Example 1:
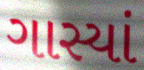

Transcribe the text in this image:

ગાસ્યાં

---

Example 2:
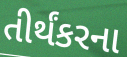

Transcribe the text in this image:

તીર્થંકરના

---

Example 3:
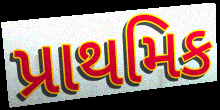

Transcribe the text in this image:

પ્રાથમિક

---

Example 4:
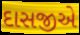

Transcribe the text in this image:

દાસજીએ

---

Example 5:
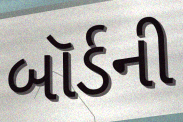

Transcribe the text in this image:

બૉર્ડની